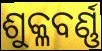
ଶୁକ୍ଳବର୍ଣ୍ଣ